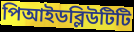
পিআইডব্লিউটিটি